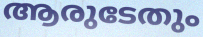
ആരുടേതും